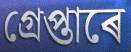
গ্ৰেপ্তাৰে